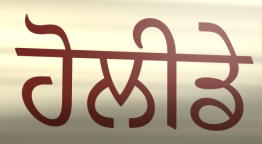
ਹੋਲੀਡੇ